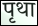
पृथा